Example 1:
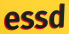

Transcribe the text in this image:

essd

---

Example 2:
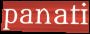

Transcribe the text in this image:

panati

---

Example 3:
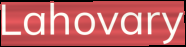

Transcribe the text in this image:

Lahovary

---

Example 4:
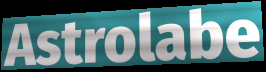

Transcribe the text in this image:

Astrolabe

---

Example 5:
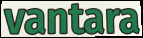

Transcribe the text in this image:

vantara